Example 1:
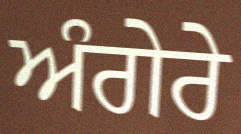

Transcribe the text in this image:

ਅੰਗੇਰੇ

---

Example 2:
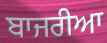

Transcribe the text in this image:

ਬਾਜਰੀਆ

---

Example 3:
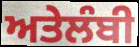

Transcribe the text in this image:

ਅਤੇਲੰਬੀ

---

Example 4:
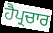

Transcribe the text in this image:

ਹੈਪ੍ਰਚਾਰ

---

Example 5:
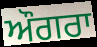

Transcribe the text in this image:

ਔਗਰਾ